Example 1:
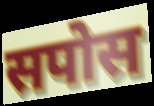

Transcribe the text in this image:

सपोस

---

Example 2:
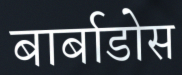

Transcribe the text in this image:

बार्बाडोस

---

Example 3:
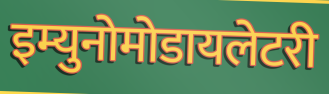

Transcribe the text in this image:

इम्युनोमोडायलेटरी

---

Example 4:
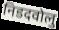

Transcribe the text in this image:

निडदवोलु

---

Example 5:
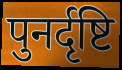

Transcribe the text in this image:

पुनर्दृष्टि